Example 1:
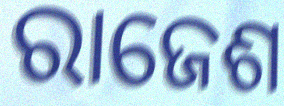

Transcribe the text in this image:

ରାଜେଶ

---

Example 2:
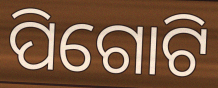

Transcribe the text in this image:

ପିଗୋଟି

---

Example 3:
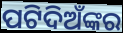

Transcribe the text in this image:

ପଟିଦିଅଁଙ୍କର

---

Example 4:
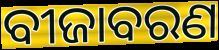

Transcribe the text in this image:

ବୀଜାବରଣ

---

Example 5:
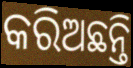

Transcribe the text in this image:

କରିଅଛନ୍ତି